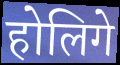
होलिगे